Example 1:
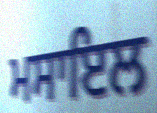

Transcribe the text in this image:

ਮਸਾਇਲ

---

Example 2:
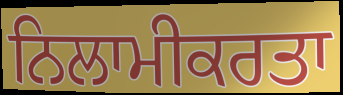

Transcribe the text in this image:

ਨਿਲਾਮੀਕਰਤਾ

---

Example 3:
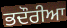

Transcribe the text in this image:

ਭਦੌਰੀਆ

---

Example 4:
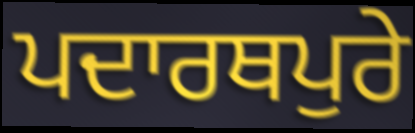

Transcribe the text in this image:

ਪਦਾਰਥਪੁਰੇ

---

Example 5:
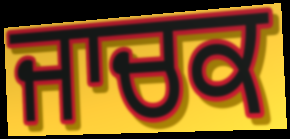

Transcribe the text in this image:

ਜਾਚਕ